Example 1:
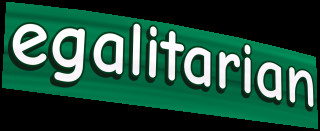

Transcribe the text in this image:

egalitarian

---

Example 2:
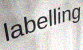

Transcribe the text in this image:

labelling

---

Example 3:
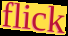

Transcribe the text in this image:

flick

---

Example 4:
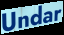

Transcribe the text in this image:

Undar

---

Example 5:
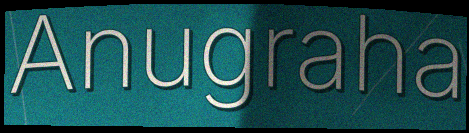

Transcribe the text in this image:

Anugraha